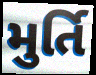
મુર્તિ